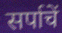
सर्पाचें